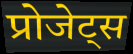
प्रोजेट्स